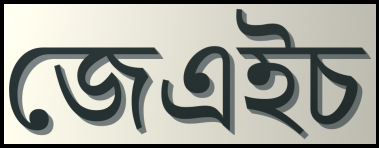
জেএইচ